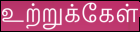
உற்றுக்கேள்